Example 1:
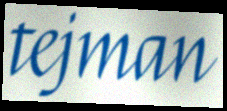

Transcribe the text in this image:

tejman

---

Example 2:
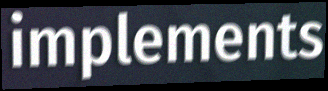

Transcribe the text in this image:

implements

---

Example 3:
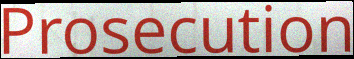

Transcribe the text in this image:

Prosecution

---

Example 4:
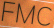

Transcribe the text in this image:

FMC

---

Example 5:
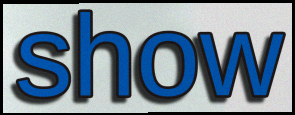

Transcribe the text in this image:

show